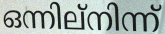
ഒന്നില്നിന്ന്